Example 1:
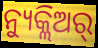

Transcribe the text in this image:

ନ୍ୟୁକ୍ଲିଅର୍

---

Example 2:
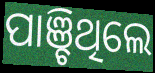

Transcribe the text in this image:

ପାଞ୍ଚିଥିଲେ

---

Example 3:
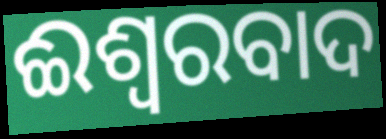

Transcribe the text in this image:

ଈଶ୍ବରବାଦ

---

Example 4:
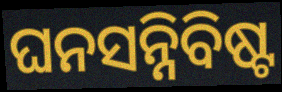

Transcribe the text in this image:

ଘନସନ୍ନିବିଷ୍ଟ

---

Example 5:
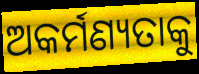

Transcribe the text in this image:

ଅକର୍ମଣ୍ୟତାକୁ